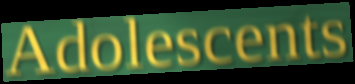
Adolescents